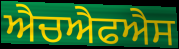
ਐਚਐਫਐਸ